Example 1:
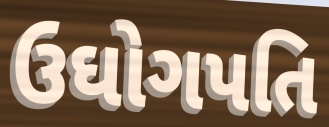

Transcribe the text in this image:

ઉઘોગપતિ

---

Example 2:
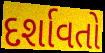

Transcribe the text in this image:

દર્શાવતો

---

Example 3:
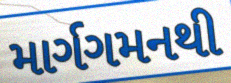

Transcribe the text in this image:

માર્ગગમનથી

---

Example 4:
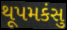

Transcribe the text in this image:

થૂપમકંસુ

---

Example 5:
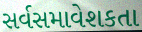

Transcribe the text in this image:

સર્વસમાવેશકતા